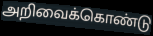
அறிவைக்கொண்டு